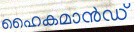
ഹൈകമാൻഡ്